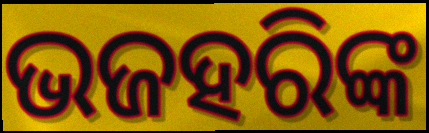
ଭଜହରିଙ୍କ